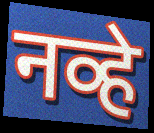
नव्हे